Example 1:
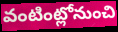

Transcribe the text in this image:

వంటింట్లోనుంచి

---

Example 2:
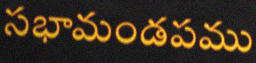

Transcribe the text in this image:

సభామండపము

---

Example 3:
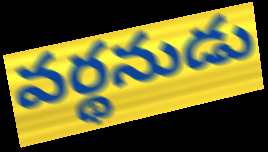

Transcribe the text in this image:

వర్థనుడు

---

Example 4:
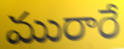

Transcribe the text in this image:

మురారే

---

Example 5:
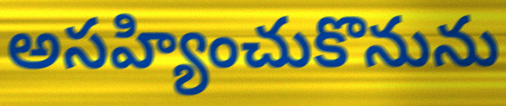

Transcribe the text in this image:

అసహ్యించుకొనును